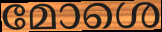
മോശെ